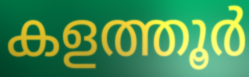
കളത്തൂർ